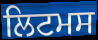
ਲਿਟਮਸ